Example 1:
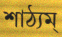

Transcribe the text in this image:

শাঠ্যম্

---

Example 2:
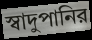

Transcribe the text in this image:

স্বাদুপানির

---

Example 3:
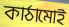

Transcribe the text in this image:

কাঠামোই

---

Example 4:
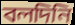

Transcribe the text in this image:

বলদিনি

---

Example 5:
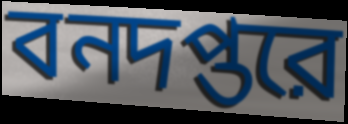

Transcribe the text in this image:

বনদপ্তরে